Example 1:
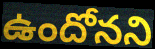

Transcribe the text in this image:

ఉందోనని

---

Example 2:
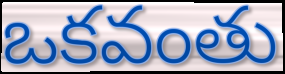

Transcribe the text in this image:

ఒకవంతు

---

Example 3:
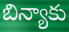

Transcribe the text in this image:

బిన్యాకు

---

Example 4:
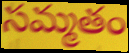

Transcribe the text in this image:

సమ్మతం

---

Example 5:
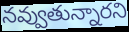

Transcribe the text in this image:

నవ్వుతున్నారని